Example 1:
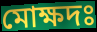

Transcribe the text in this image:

মোক্ষদঃ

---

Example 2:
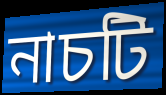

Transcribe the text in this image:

নাচটি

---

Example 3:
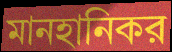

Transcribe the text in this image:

মানহানিকর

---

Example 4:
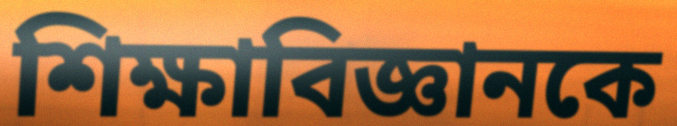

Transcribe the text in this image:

শিক্ষাবিজ্ঞানকে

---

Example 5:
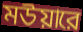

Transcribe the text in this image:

মউয়ারে